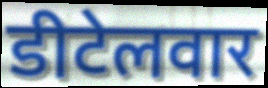
डीटेलवार